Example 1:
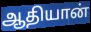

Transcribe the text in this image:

ஆதியான்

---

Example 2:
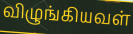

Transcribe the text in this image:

விழுங்கியவள்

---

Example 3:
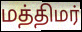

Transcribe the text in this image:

மத்திமர்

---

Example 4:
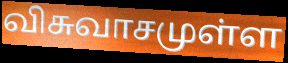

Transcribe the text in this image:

விசுவாசமுள்ள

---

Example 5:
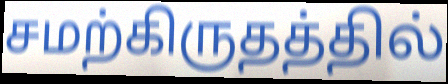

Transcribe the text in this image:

சமற்கிருதத்தில்